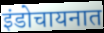
इंडोचायनात